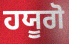
ਹਯੂਗੋ